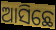
ଆସିଛେ